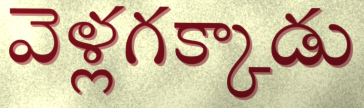
వెళ్లగక్కాడు